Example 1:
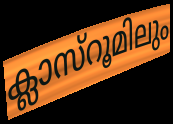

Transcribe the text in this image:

ക്ലാസ്റൂമിലും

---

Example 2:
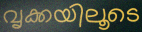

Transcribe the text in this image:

വൃക്കയിലൂടെ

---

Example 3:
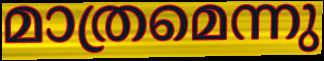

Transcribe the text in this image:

മാത്രമെന്നു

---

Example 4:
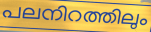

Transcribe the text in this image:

പലനിറത്തിലും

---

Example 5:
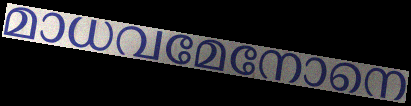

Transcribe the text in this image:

മാധവമേനോനെ